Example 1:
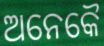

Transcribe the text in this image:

ଅନେକୈ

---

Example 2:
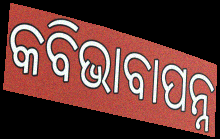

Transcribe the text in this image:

କବିଭାବାପନ୍ନ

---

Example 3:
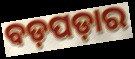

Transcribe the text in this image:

ବଡ଼ପଡ଼ାର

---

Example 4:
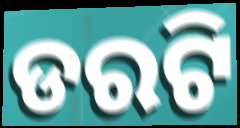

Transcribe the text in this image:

ଡରଟି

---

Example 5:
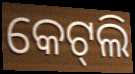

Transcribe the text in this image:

କେଟ୍‌ଲି